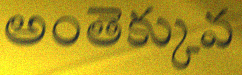
అంతెక్కువ